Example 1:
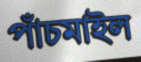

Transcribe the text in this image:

পাঁচমাইল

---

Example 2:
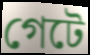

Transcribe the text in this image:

গেটে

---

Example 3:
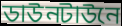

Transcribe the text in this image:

ডাউনটাউনে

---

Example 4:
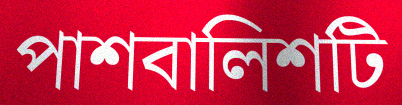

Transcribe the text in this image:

পাশবালিশটি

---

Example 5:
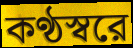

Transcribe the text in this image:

কণ্ঠস্বরে